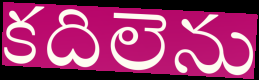
కదిలెను